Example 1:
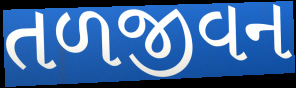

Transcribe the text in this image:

તળજીવન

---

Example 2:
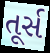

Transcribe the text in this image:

તૂર્સ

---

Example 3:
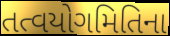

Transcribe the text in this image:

તત્વયોગમિતિના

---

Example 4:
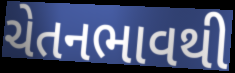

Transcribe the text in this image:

ચેતનભાવથી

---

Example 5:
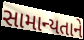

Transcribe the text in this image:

સામાન્યતાને